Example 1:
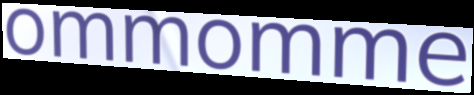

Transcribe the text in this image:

ommomme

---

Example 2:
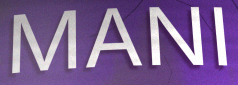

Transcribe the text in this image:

MANI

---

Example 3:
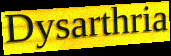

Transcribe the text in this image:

Dysarthria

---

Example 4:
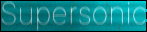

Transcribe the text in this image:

Supersonic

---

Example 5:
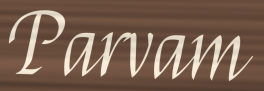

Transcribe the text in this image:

Parvam